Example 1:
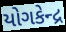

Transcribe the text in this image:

યોગકેન્દ્ર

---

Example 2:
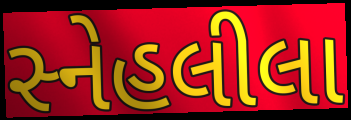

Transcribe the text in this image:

સ્નેહલીલા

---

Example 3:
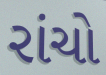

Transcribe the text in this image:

રાંચો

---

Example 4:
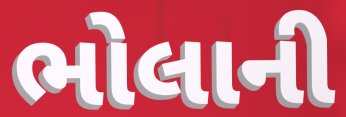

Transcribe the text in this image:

ભોલાની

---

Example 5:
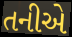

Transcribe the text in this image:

તનીએ